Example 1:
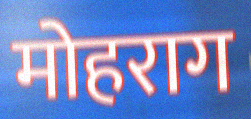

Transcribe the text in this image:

मोहराग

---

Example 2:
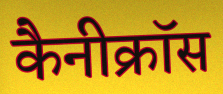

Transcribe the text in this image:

कैनीक्रॉस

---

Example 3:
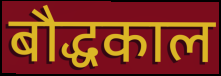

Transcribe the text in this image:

बौद्धकाल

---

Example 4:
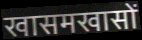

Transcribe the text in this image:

खासमखासों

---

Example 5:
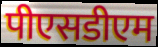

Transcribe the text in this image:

पीएसडीएम